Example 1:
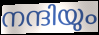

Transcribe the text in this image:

നന്ദിയും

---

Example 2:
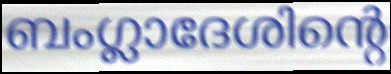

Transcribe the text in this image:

ബംഗ്ലാദേശിന്റെ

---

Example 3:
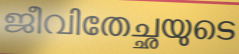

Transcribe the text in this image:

ജീവിതേച്ഛയുടെ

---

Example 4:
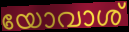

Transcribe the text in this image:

യോവാശ്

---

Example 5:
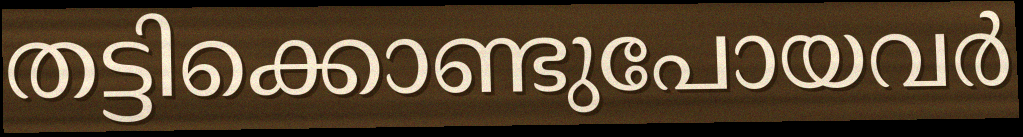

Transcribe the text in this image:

തട്ടിക്കൊണ്ടുപോയവർ